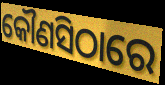
କୌଣସିଠାରେ